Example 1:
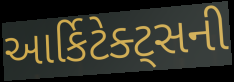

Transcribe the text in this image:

આર્કિટેક્ટ્સની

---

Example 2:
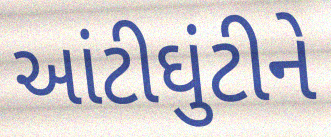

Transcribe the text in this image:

આંટીઘુંટીને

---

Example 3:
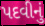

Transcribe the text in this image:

પદવીનું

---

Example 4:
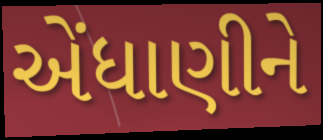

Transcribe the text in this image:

એંધાણીને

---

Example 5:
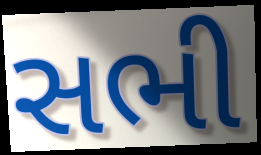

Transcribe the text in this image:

સભી